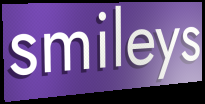
smileys